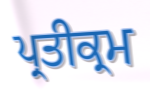
ਪ੍ਰਤੀਕ੍ਰਮ